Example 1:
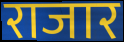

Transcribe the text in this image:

राजार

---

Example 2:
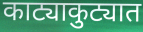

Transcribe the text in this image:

काट्याकुट्यात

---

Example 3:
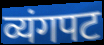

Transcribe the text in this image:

व्यंगपट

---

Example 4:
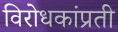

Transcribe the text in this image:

विरोधकांप्रती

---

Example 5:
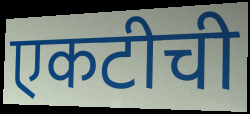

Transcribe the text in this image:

एकटीची